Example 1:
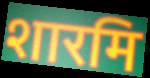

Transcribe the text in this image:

शारमि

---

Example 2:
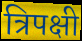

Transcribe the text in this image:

त्रिपक्षी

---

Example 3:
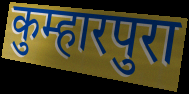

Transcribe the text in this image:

कुम्हारपुरा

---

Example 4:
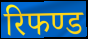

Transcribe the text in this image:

रिफण्ड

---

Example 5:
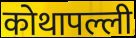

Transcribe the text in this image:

कोथापल्ली